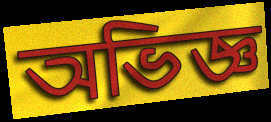
অভিজ্ঞ